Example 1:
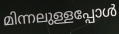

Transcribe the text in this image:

മിന്നലുള്ളപ്പോൾ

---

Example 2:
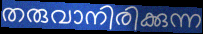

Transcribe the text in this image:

തരുവാനിരിക്കുന്ന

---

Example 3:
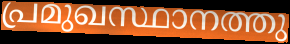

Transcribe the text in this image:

പ്രമുഖസ്ഥാനത്തു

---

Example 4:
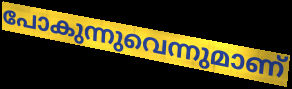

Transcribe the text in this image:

പോകുന്നുവെന്നുമാണ്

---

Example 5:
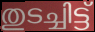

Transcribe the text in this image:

തുടച്ചിട്ട്